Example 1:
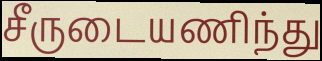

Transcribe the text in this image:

சீருடையணிந்து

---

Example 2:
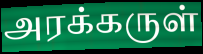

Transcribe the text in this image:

அரக்கருள்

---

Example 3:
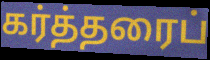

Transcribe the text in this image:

கர்த்தரைப்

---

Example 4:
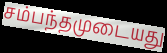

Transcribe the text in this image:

சம்பந்தமுடையது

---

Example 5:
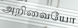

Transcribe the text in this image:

அறிவையோ